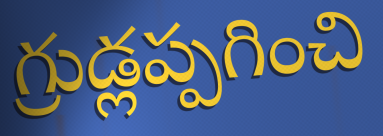
గ్రుడ్లప్పగించి